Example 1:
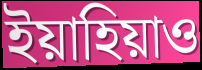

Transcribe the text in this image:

ইয়াহিয়াও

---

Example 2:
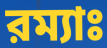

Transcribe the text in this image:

রম্যাঃ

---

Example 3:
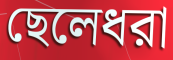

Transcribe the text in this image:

ছেলেধরা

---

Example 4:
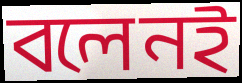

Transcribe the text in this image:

বলেনই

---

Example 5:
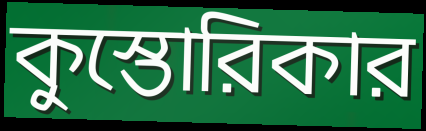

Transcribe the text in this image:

কুস্তোরিকার